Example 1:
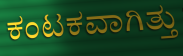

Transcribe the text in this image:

ಕಂಟಕವಾಗಿತ್ತು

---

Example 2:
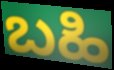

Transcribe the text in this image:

ಬಹಿ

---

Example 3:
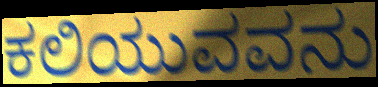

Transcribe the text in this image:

ಕಲಿಯುವವನು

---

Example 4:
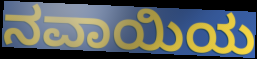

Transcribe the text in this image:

ನವಾಯಿಯ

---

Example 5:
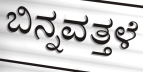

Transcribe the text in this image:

ಬಿನ್ನವತ್ತಳೆ